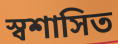
স্বশাসিত